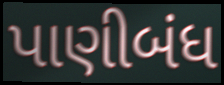
પાણીબંધ